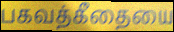
பகவத்கீதையை